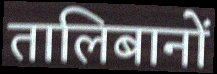
तालिबानों